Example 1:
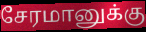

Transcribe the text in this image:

சேரமானுக்கு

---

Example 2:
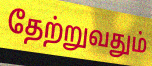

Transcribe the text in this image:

தேற்றுவதும்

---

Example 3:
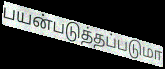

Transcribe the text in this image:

பயன்படுத்தப்படுமா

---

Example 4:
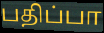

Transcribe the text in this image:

பதிப்பா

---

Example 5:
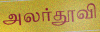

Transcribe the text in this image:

அலர்தூவி